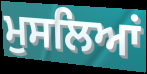
ਮੁਸਲਿਆਂ